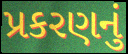
પ્રકરણનું